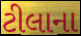
ટીલાના